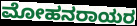
ಮೋಹನರಾಯರ